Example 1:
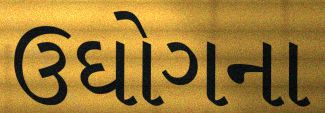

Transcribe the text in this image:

ઉઘોગના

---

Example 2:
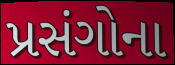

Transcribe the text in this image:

પ્રસંગોના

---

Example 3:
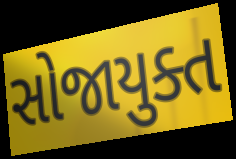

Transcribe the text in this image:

સોજાયુક્ત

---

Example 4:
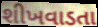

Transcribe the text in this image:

શીખવાડતા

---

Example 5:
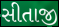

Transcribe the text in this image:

સીતાજી